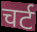
चर्ट